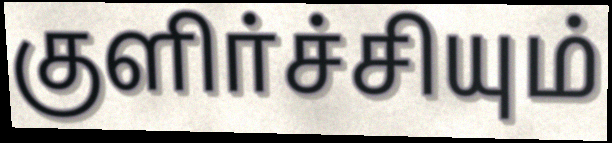
குளிர்ச்சியும்